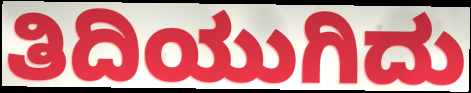
ತಿದಿಯುಗಿದು